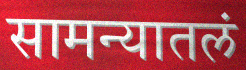
सामन्यातलं